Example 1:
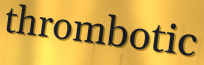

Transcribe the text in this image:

thrombotic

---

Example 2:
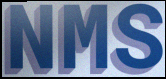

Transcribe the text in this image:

NMS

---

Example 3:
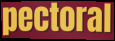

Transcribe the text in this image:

pectoral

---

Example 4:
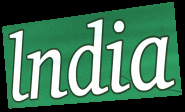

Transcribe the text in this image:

lndia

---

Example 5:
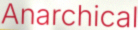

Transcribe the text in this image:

Anarchical